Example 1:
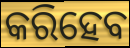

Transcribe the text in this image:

କରିହେବ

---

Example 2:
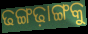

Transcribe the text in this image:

ଢଙ୍ଗଢ଼ାଙ୍ଗକୁ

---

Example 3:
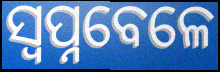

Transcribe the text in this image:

ସ୍ଵପ୍ନବେଳେ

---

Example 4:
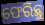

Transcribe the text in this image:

ଫେରିଛୁ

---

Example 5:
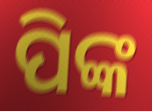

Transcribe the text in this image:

ପିଙ୍କ